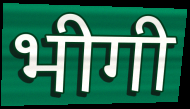
भीगी